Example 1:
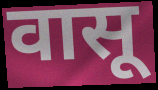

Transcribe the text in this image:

वासू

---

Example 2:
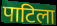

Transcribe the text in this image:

पाटिला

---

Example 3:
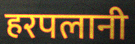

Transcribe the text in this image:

हरपलानी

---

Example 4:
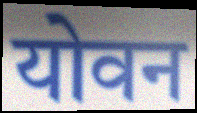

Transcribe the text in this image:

योवन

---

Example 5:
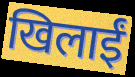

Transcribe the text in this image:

खिलाईं